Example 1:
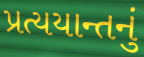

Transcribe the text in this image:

પ્રત્યયાન્તનું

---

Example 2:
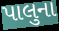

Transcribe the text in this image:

પાલુના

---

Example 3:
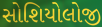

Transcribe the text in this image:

સોશિયોલોજી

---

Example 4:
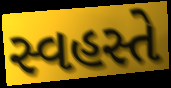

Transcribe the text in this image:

સ્વહસ્તે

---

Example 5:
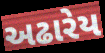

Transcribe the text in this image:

અઢારેય